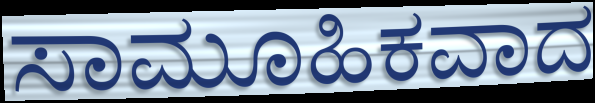
ಸಾಮೂಹಿಕವಾದ